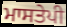
ਮਾਸਤੇਪੀ